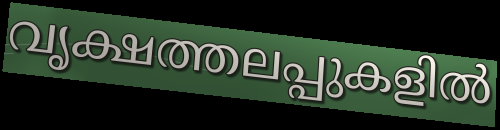
വൃക്ഷത്തലപ്പുകളിൽ